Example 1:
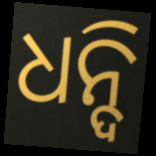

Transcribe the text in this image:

ଧନ୍ଦି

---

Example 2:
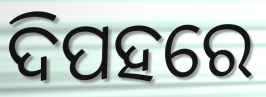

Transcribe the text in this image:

ଦିପହରେ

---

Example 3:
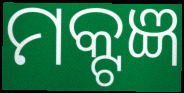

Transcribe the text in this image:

ମକ୍ଟଜ୍ଞ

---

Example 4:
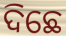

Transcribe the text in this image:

ଦିଛେ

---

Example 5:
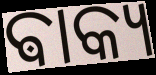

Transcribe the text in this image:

ଵାକ୍ୟ